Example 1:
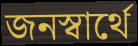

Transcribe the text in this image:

জনস্বার্থে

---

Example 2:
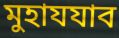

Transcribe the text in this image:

মুহাযযাব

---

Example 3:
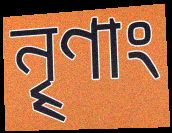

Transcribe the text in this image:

নৄণাং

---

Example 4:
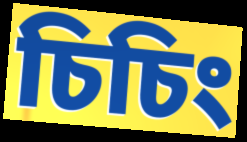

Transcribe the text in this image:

চিচিং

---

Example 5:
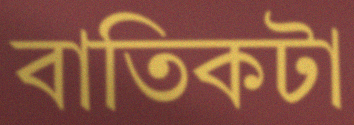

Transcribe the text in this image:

বাতিকটা